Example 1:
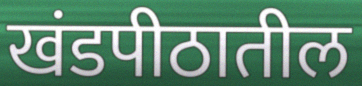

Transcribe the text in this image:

खंडपीठातील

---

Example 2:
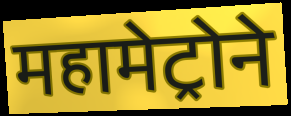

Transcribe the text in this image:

महामेट्रोने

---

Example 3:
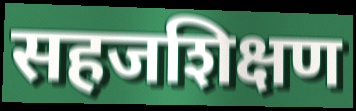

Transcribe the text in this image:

सहजशिक्षण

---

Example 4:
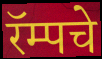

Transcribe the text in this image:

रॅम्पचे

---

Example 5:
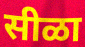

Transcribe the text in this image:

सीळा